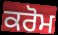
ਕਰੋਮ